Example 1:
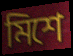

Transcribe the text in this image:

মিশে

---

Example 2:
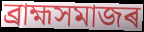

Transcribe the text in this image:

ব্ৰাহ্মসমাজৰ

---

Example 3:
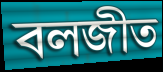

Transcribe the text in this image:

বলজীত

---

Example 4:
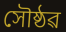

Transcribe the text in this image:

সৌষ্ঠৱ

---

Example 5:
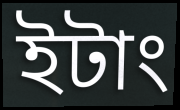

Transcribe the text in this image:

ইটাং